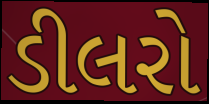
ડીલરો